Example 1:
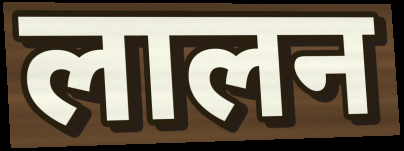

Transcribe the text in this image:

लालन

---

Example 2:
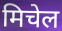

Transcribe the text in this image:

मिचेल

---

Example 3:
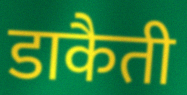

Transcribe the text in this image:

डाकैती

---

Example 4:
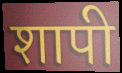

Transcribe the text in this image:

शापी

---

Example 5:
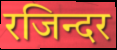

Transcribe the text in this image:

रजिन्दर